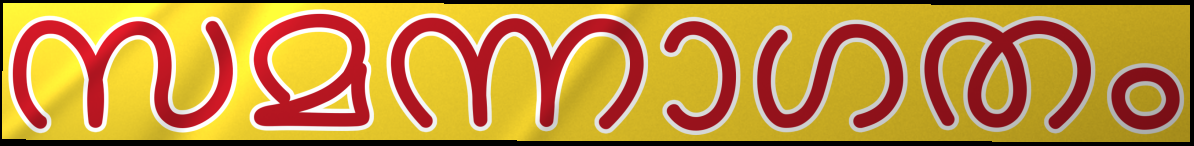
സമന്നാഗതം